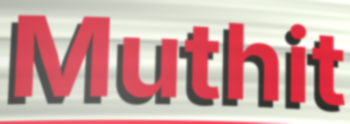
Muthit